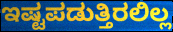
ಇಷ್ಟಪಡುತ್ತಿರಲಿಲ್ಲ